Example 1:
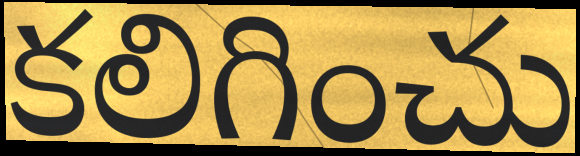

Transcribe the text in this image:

కలిగించు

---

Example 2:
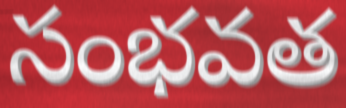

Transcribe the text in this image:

సంభవత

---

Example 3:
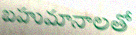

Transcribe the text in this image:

బహుమానాలతో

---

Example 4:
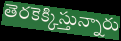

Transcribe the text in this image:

తెరకెక్కిస్తున్నారు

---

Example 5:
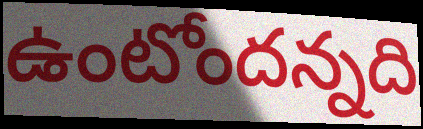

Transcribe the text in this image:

ఉంటోందన్నది